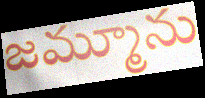
జమ్మూను